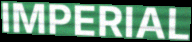
IMPERIAL